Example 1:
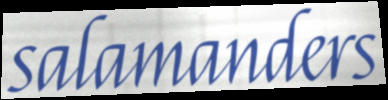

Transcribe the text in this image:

salamanders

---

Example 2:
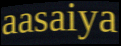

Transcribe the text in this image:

aasaiya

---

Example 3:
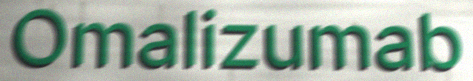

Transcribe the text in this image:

Omalizumab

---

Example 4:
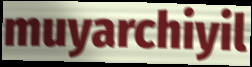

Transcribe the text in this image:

muyarchiyil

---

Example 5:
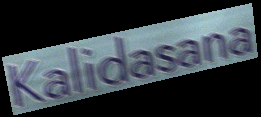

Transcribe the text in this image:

Kalidasana